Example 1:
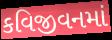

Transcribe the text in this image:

કવિજીવનમાં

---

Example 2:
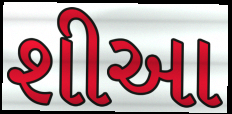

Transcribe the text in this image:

શીઆ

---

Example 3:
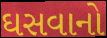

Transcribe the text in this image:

ઘસવાનો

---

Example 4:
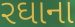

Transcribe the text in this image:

રઘાના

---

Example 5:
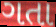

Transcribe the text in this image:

ગતા